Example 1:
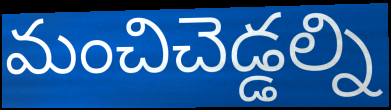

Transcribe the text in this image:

మంచిచెడ్డల్ని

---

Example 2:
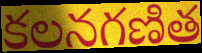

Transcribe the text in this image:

కలనగణిత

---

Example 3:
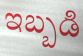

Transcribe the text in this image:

ఇబ్బడి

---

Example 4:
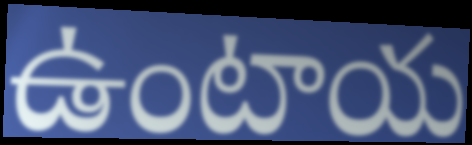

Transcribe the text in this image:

ఉంటాయ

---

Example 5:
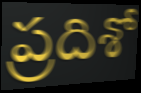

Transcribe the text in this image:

ప్రదిశో